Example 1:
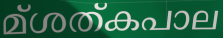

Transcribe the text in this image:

മ്ശത്കപാല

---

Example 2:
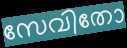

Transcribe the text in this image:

സേവിതോ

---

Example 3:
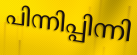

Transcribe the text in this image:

പിന്നിപ്പിന്നി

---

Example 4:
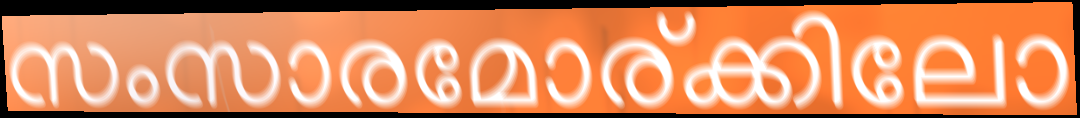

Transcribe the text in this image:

സംസാരമോര്ക്കിലോ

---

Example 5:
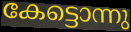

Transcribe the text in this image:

കേട്ടൊന്നു